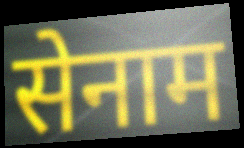
सेनाम